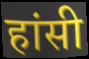
हांसी